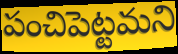
పంచిపెట్టమని